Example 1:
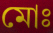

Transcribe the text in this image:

মোঃ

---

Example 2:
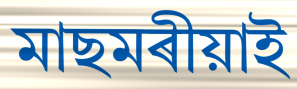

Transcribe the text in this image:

মাছমৰীয়াই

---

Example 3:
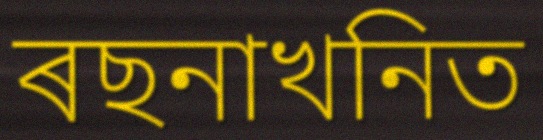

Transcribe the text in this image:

ৰছনাখনিত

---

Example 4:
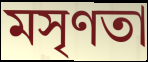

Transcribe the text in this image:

মসৃণতা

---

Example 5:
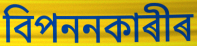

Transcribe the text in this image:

বিপননকাৰীৰ